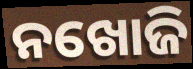
ନଖୋଜି